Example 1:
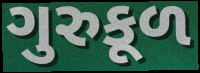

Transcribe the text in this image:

ગુરુકૂળ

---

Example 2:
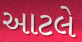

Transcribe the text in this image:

આટલે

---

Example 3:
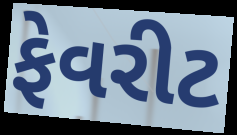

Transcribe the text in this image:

ફેવરીટ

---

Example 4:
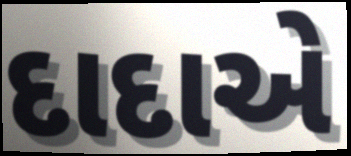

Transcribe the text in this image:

દાદાએ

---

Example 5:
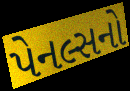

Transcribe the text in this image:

પેનલ્સનો